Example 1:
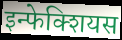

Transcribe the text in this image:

इन्फेक्शियस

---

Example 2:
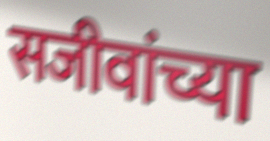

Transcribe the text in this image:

सजीवांच्या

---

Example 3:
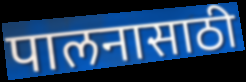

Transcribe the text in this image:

पालनासाठी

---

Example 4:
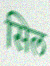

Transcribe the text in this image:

सिल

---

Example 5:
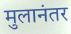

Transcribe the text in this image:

मुलानंतर